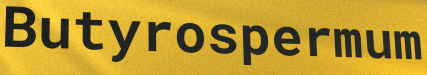
Butyrospermum